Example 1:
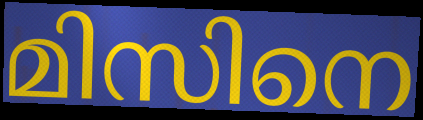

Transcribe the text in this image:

മിസിനെ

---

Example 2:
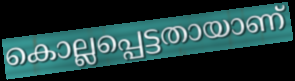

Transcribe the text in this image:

കൊല്ലപ്പെട്ടതായാണ്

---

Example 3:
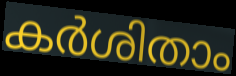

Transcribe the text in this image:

കർശിതാം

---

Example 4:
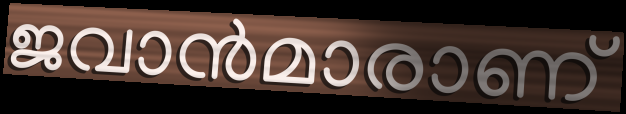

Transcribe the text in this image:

ജവാൻമാരാണ്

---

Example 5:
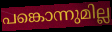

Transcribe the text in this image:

പങ്കൊന്നുമില്ല